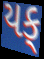
યક્